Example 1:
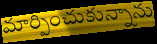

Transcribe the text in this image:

మార్పించుకున్నాను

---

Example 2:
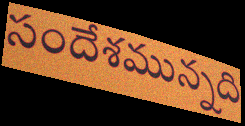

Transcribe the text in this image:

సందేశమున్నది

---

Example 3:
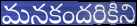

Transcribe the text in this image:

మనకందరికిని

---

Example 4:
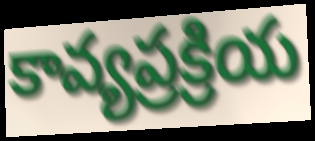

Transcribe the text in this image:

కావ్యప్రక్రియ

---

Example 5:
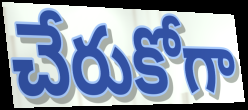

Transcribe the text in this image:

చేరుకోగా